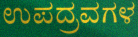
ಉಪದ್ರವಗಳ